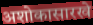
अशोकासारखे